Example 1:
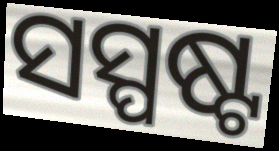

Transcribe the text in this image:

ସସ୍ପଷ୍ଟ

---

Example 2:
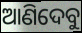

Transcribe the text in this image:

ଆଣିଦେବୁ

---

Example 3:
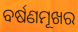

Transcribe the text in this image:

ବର୍ଷଣମୂଖର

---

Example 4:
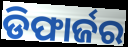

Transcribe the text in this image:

ଡିଫାର୍ଜର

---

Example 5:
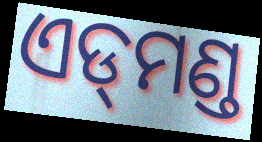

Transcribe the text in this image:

ଏଡ୍‌ମଣ୍ଡ